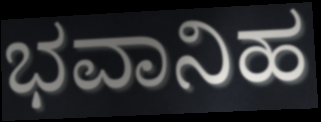
ಭವಾನಿಹ